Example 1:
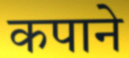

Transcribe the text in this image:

कपाने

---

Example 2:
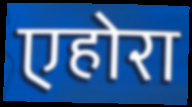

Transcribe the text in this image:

एहोरा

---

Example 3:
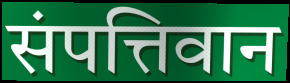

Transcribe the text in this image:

संपत्तिवान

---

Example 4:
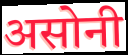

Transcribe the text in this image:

असोनी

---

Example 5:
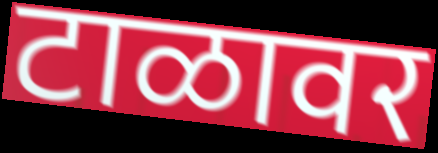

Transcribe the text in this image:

टाळावर